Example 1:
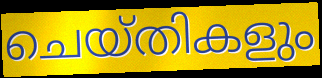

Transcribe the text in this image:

ചെയ്തികളും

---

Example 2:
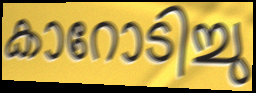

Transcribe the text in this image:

കാറോടിച്ചു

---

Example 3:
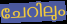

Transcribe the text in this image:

ചേറിലും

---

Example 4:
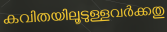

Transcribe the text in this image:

കവിതയിലൂടുള്ളവർക്കതു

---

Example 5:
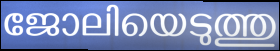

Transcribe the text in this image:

ജോലിയെടുത്തു